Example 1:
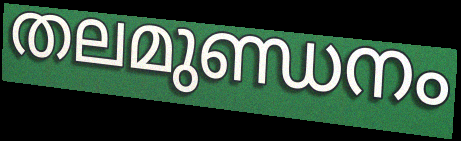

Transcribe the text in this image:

തലമുണ്ഡനം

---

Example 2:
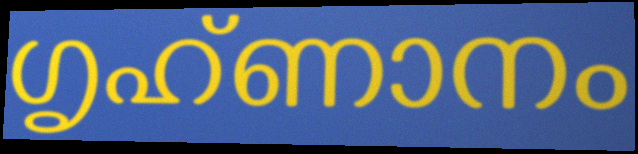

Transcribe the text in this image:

ഗൃഹ്ണാനം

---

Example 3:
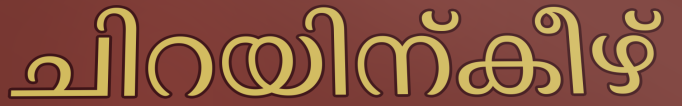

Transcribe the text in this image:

ചിറയിന്കീഴ്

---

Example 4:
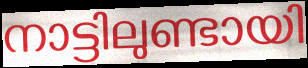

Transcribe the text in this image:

നാട്ടിലുണ്ടായി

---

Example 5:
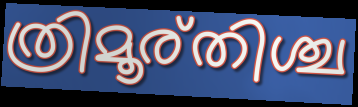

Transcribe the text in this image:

ത്രിമൂര്തിശ്ച